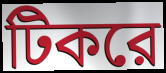
টিকরে